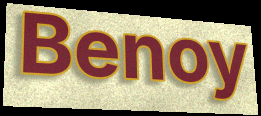
Benoy